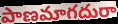
పాణమాగదురా